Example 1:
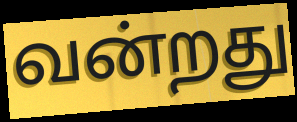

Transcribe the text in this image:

வன்றது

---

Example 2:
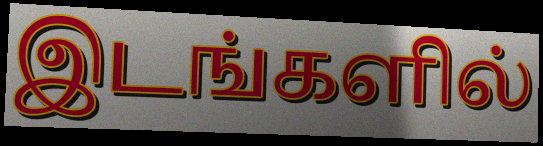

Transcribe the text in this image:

இடங்களில்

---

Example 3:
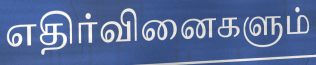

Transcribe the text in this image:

எதிர்வினைகளும்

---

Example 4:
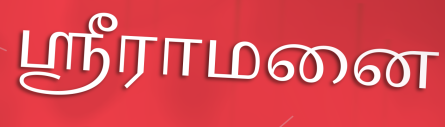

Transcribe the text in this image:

ஸ்ரீராமனை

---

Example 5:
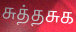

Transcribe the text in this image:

சுத்தசுக